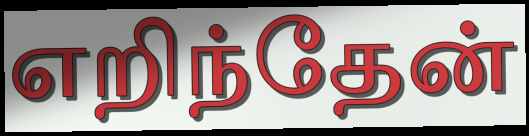
எறிந்தேன்